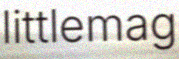
littlemag